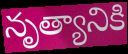
నృత్యానికి